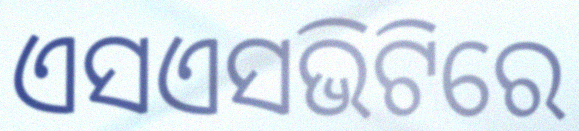
ଏସଏସଭିଟିରେ